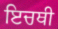
ਇਚਥੀ